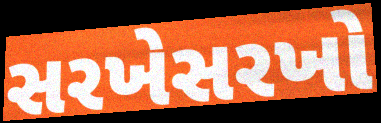
સરખેસરખો